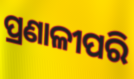
ପ୍ରଣାଳୀପରି